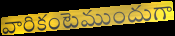
వారికంటెముందుగా